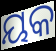
ୟକ